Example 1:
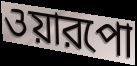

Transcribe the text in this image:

ওয়ারপো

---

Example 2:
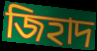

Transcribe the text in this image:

জিহাদ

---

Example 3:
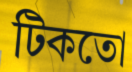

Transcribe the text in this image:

টিকতো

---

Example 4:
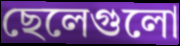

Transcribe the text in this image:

ছেলেগুলো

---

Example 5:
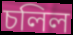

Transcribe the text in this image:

চলিল